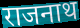
राजनाथ